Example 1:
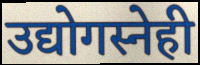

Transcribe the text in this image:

उद्योगस्नेही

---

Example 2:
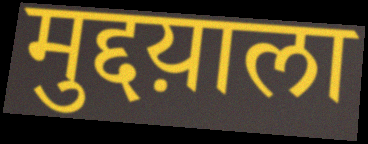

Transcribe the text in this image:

मुद्दय़ाला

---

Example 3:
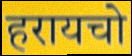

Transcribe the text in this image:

हरायचो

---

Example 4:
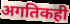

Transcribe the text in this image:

अगतिकही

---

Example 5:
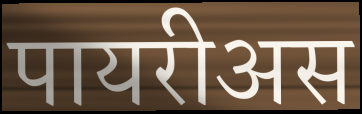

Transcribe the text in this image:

पायरीअस